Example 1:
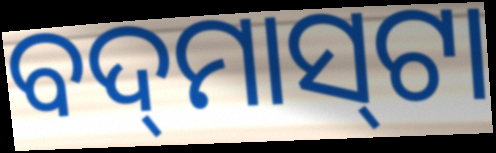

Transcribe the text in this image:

ବଦ୍‌ମାସ୍‌ଟା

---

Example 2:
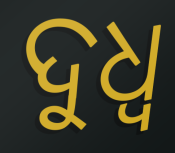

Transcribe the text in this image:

ଦୁଧ୍ଵ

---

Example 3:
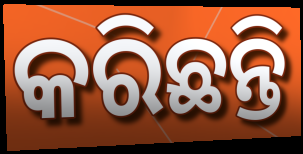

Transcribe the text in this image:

କରିଛନ୍ତି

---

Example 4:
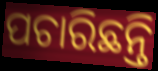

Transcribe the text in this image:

ପଚାରିଛନ୍ତି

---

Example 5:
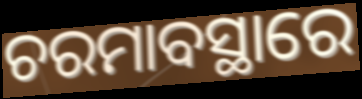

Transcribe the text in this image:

ଚରମାବସ୍ଥାରେ